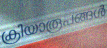
ക്രിയാരൂപങ്ങൾ